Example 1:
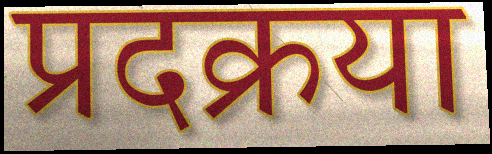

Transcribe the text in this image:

प्रदक्रया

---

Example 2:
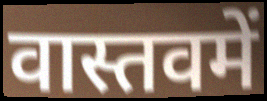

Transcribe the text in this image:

वास्तवमें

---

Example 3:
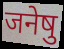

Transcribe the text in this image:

जनेषु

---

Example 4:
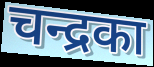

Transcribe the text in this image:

चन्द्रका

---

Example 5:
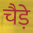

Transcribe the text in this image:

चैड़े